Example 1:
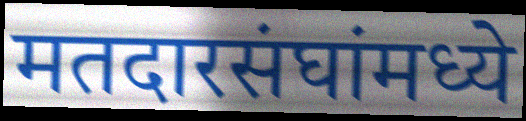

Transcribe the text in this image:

मतदारसंघांमध्ये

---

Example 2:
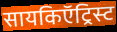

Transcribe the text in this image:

सायकिऍट्रिस्ट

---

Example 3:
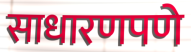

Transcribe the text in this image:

साधारणपणे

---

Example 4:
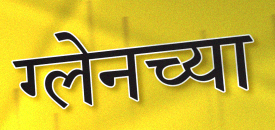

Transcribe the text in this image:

ग्लेनच्या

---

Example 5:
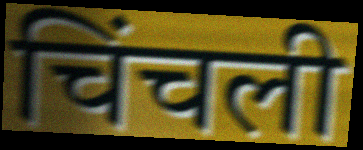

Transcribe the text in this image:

चिंचली